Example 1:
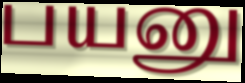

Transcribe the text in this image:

பயனு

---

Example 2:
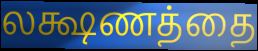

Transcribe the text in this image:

லக்ஷணத்தை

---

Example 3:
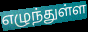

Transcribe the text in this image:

எழுந்துள்ள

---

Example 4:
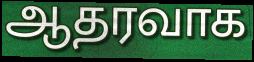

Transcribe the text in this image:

ஆதரவாக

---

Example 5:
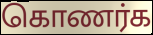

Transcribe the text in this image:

கொணர்க